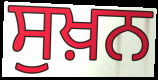
ਸੁਖ਼ਨ